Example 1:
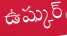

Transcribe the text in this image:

ఉష్కుర్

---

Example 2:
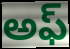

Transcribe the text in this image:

అఫ్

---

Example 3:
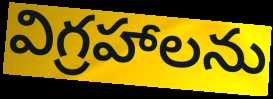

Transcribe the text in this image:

విగ్రహాలను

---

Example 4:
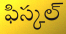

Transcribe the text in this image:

ఫిస్కల్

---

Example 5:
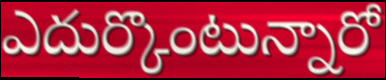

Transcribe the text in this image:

ఎదుర్కొంటున్నారో